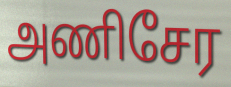
அணிசேர